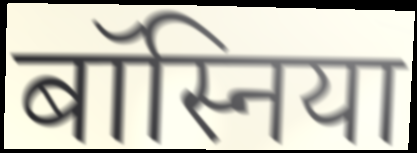
बॉस्निया